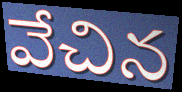
వేచిన